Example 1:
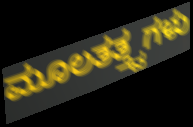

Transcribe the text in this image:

ಮೂಲತತ್ತ್ವಗಳು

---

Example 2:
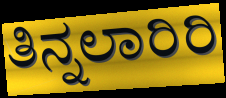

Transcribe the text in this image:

ತಿನ್ನಲಾರಿರಿ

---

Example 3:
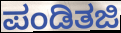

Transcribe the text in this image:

ಪಂಡಿತಜಿ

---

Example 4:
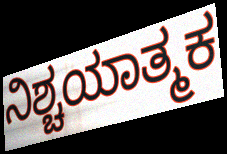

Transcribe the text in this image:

ನಿಶ್ಚಯಾತ್ಮಕ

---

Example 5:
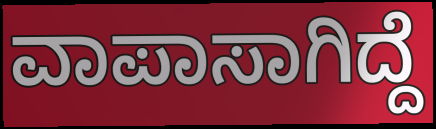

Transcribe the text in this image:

ವಾಪಾಸಾಗಿದ್ದೆ